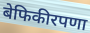
बेफिकीरपणा